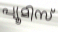
പ്യൂമിസ്